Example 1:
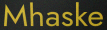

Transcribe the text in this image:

Mhaske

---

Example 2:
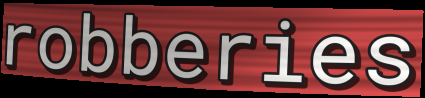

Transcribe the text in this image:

robberies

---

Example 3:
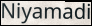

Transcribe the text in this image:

Niyamadi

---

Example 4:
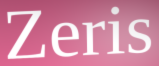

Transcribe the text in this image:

Zeris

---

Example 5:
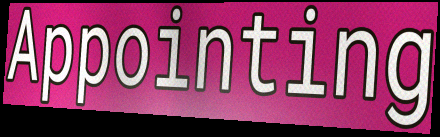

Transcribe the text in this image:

Appointing